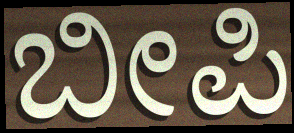
ಬೀಪಿ